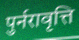
पुर्नरावृत्ति